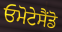
ਓਮੋਟੇਸੈਂਡੋ